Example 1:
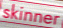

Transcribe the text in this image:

skinner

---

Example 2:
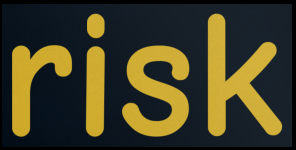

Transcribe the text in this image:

risk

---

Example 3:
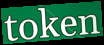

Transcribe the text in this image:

token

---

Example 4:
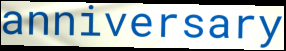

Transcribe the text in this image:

anniversary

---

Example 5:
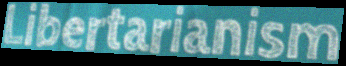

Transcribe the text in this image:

Libertarianism